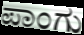
ಪಾಂಗು